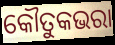
କୌତୁକଭରା